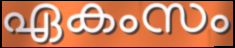
ഏകംസം